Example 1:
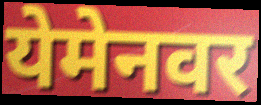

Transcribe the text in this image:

येमेनवर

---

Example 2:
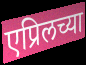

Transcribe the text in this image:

एप्रिलच्या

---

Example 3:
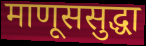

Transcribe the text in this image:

माणूससुद्धा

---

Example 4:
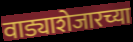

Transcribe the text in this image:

वाड्याशेजारच्या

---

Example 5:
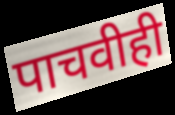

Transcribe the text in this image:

पाचवीही